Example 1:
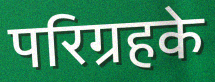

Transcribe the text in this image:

परिग्रहके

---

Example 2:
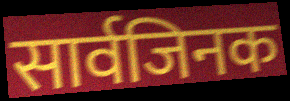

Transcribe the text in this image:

सार्वजिनक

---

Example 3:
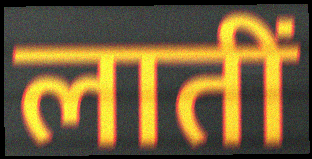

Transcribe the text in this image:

लातीं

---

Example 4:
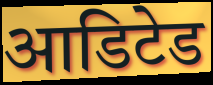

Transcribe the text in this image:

आडिटेड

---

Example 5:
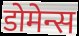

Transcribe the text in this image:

डोमेन्स